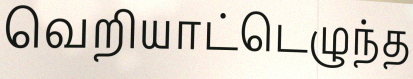
வெறியாட்டெழுந்த